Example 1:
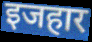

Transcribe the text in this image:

इजहार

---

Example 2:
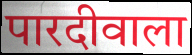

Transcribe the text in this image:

पारदीवाला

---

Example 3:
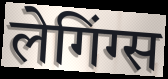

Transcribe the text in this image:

लेगिंग्स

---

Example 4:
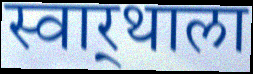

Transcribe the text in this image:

स्वार्थाला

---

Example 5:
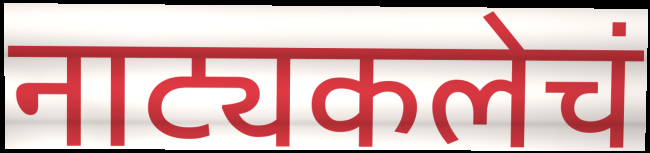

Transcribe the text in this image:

नाट्यकलेचं